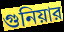
গুনিয়ার